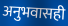
अनुभवासही